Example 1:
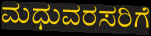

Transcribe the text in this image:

ಮಧುವರಸರಿಗೆ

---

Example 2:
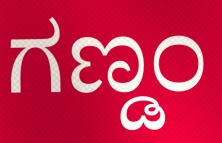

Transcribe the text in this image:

ಗಣ್ಡಂ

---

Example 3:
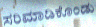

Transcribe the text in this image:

ಸರಿಮಾಡಿಕೊಂಡು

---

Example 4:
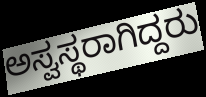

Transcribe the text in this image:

ಅಸ್ವಸ್ಥರಾಗಿದ್ದರು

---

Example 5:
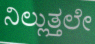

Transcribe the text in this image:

ನಿಲ್ಲುತ್ತಲೇ